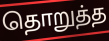
தொறுத்த